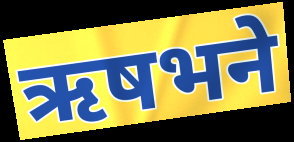
ऋषभने